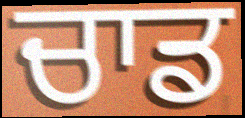
ਚਾਡ